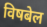
विषबेल